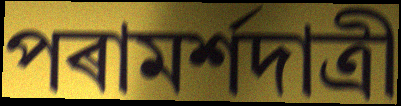
পৰামৰ্শদাত্ৰী